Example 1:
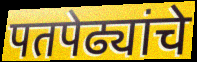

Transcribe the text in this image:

पतपेढ्यांचे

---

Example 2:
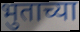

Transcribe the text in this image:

भुताच्या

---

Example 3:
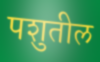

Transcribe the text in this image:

पशुतील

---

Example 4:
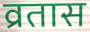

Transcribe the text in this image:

व्रतास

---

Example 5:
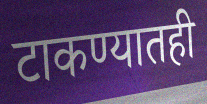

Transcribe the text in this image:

टाकण्यातही